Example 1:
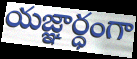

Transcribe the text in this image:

యజ్ఞార్ధంగా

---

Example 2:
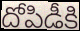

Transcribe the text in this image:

దోపిడీకి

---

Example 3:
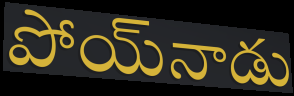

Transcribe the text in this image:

పోయ్‌నాడు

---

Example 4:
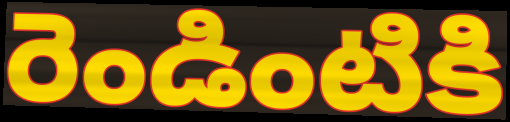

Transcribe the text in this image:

రెండింటికి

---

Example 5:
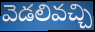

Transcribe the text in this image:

వెడలివచ్చి